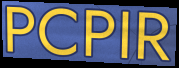
PCPIR